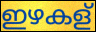
ഇഴകള്